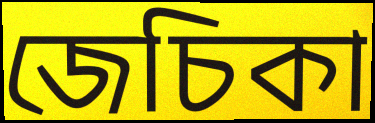
জেচিকা